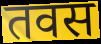
तवस